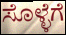
ಸೊಳ್ಳೆಗೆ